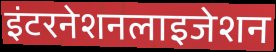
इंटरनेशनलाइजेशन